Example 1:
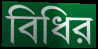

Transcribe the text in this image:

বিধির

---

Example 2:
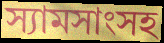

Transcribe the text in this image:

স্যামসাংসহ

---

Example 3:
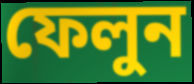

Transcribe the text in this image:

ফেলুন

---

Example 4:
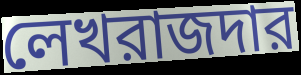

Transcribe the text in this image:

লেখরাজদার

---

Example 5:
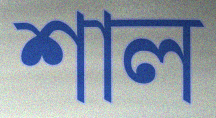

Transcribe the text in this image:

শাল